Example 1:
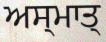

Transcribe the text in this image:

ਅਸ੍ਮਾਤ੍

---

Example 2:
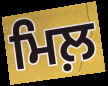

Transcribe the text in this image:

ਮਿਲ਼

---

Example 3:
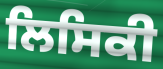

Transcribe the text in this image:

ਲਿਸਿਕੀ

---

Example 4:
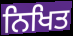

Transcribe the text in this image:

ਨਿਖਿਤ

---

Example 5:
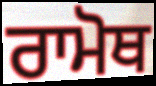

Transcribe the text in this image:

ਰਾਮੋਥ